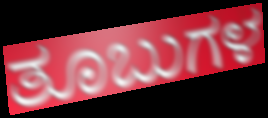
ತೂಬುಗಳ